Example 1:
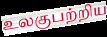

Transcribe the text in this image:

உலகுபற்றிய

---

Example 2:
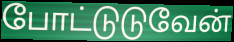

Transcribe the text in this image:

போட்டுடுவேன்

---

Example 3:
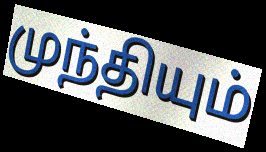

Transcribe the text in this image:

முந்தியும்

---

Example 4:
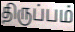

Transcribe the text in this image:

திருப்பம்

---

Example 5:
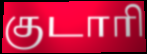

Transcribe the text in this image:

குடாரி